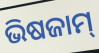
ଭିଷଜାମ୍